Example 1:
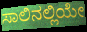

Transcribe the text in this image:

ಸಾಲಿನಲ್ಲಿಯೇ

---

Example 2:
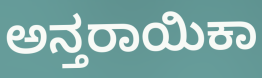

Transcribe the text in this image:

ಅನ್ತರಾಯಿಕಾ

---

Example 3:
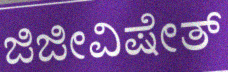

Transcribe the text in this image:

ಜಿಜೀವಿಷೇತ್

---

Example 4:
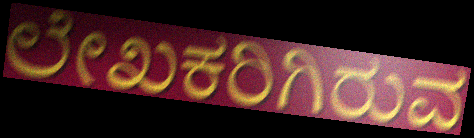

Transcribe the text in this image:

ಲೇಖಕರಿಗಿರುವ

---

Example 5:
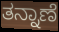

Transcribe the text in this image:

ತನ್ನಾಣೆ